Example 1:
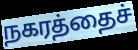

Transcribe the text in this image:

நகரத்தைச்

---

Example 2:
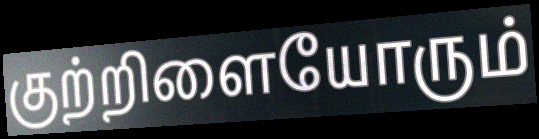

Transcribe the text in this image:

குற்றிளையோரும்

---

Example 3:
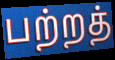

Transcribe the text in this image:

பற்றத்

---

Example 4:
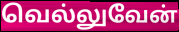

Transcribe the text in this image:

வெல்லுவேன்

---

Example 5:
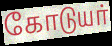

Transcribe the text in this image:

கோடுயர்